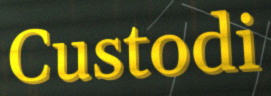
Custodi